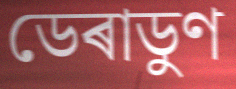
ডেৰাডুণ